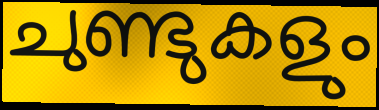
ചുണ്ടുകളും